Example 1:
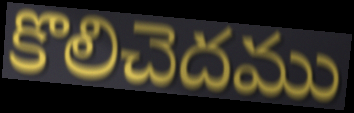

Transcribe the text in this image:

కొలిచెదము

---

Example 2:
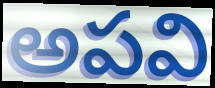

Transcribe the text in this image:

అపవి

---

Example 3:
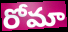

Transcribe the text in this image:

రోమా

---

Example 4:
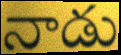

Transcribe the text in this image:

నాడు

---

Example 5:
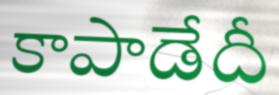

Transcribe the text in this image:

కాపాడేదీ